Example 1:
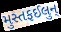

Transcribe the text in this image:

મુસ્તફઈલુન્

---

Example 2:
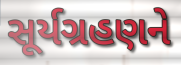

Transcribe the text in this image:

સૂર્યગ્રહણને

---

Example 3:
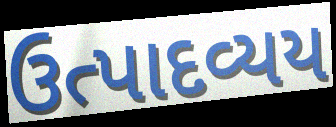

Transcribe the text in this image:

ઉત્પાદવ્યય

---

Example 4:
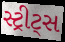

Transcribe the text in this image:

સ્ટ્રીટ્સ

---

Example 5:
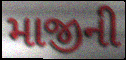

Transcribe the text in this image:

માજીની